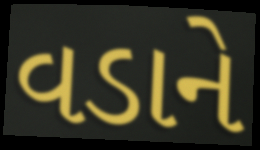
વડાને